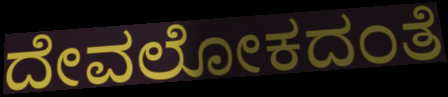
ದೇವಲೋಕದಂತೆ